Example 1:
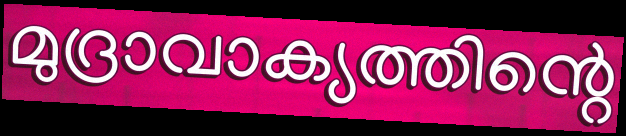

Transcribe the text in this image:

മുദ്രാവാക്യത്തിന്റെ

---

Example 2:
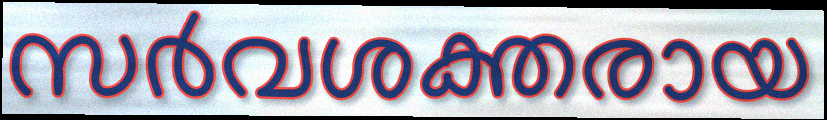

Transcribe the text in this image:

സർവശക്തരായ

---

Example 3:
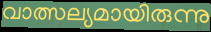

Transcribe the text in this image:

വാത്സല്യമായിരുന്നു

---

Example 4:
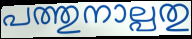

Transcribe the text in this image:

പത്തുനാല്പതു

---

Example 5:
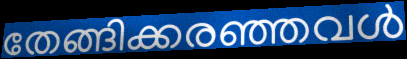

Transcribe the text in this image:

തേങ്ങിക്കരഞ്ഞവൾ